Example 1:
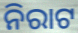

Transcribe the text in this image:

ନିରାଟ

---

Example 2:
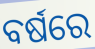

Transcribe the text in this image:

ବର୍ଷରେ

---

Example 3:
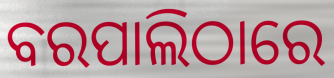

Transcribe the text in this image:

ବରପାଲିଠାରେ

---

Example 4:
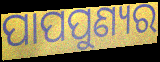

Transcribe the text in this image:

ପାପପୁଣ୍ୟର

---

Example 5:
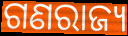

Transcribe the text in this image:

ଗଣରାଜ୍ୟ